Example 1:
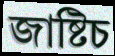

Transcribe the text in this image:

জাষ্টিচ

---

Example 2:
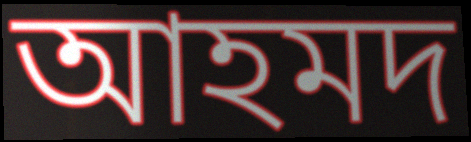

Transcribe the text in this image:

আহমদ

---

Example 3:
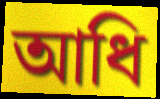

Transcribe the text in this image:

আধি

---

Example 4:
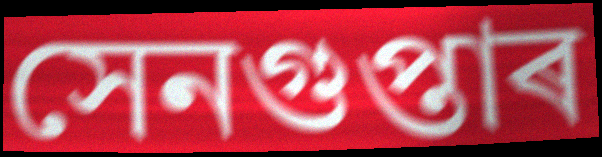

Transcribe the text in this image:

সেনগুপ্তাৰ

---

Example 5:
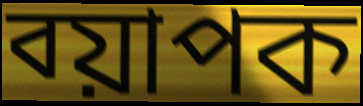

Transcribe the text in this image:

ব্য়াপক